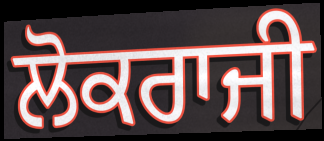
ਲੋਕਰਾਜੀ